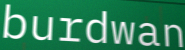
burdwan